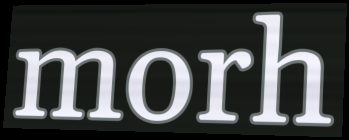
morh